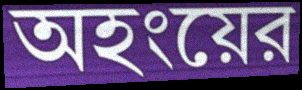
অহংয়ের